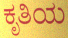
ಕೃತಿಯ